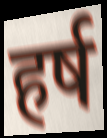
हर्ष